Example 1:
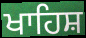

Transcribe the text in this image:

ਖਾਹਿਸ਼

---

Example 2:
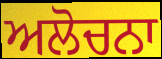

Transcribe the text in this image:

ਅਲੋਚਨਾ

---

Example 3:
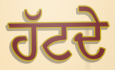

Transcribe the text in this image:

ਹੱਟਦੇ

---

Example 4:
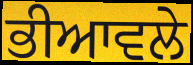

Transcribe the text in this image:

ਭੀਆਵਲੇ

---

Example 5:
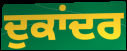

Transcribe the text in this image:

ਦੁਕਾਂਦਰ